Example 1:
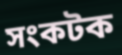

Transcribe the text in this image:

সংকটক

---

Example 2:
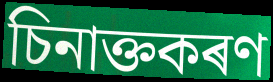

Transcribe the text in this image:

চিনাক্তকৰণ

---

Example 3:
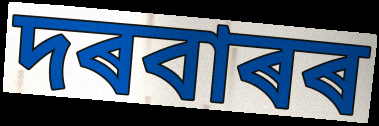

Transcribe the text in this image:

দৰবাৰৰ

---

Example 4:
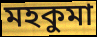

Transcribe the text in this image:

মহকুমা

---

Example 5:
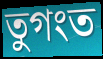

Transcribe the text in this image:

তুগংত